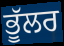
ਭੂੱਲਰ